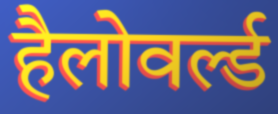
हैलोवर्ल्ड